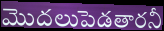
మొదలుపెడతారనీ